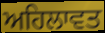
ਅਹਿਲਾਵਤ